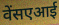
वेंसएआई